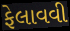
ફેલાવવી